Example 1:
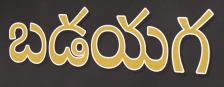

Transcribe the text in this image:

బడయగ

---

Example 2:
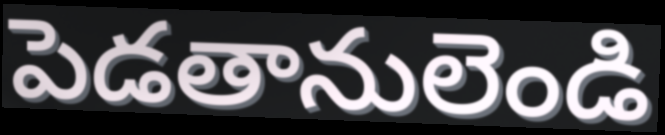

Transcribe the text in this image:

పెడతానులెండి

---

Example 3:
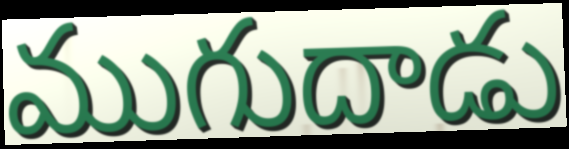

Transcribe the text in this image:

ముగుదాడు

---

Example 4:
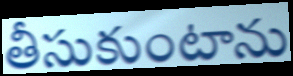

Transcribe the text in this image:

తీసుకుంటాను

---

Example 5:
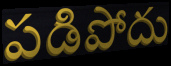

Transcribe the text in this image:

పడిపోదు